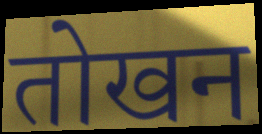
तोखन